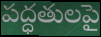
పద్ధతులపై